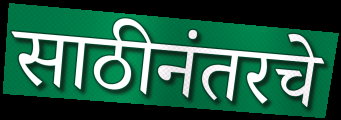
साठीनंतरचे